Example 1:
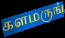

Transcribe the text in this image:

களமருங்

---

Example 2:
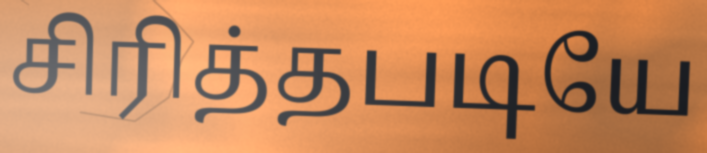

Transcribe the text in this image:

சிரித்தபடியே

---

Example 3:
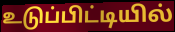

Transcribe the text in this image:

உடுப்பிட்டியில்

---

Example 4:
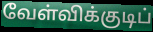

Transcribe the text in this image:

வேள்விக்குடிப்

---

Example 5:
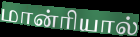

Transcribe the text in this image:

மான்ரியால்